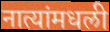
नात्यांमधली